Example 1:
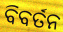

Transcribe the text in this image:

ବିବର୍ତନ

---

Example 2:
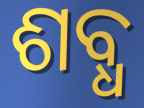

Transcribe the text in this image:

ଶବ୍ଧ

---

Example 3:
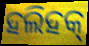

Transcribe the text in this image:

ହଲିହକ୍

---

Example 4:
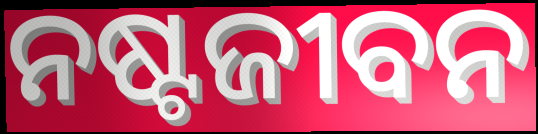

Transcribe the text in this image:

ନଷ୍ଟଜୀବନ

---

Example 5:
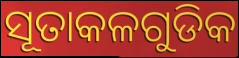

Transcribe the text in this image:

ସୂତାକଳଗୁଡିକ